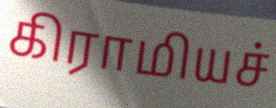
கிராமியச்